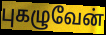
புகழுவேன்